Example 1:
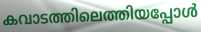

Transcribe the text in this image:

കവാടത്തിലെത്തിയപ്പോൾ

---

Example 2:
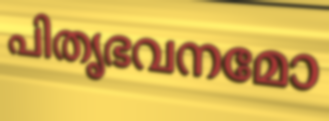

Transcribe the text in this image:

പിതൃഭവനമോ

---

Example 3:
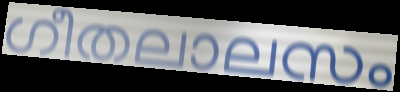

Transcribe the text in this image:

ഗീതലാലസം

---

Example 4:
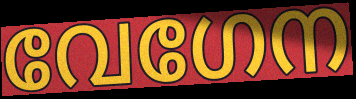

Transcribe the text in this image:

വേഗേന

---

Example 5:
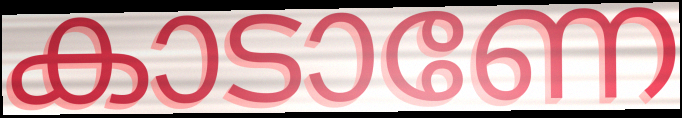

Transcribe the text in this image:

കാടാണേ